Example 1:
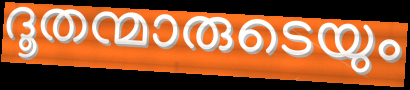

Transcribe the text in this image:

ദൂതന്മാരുടെയും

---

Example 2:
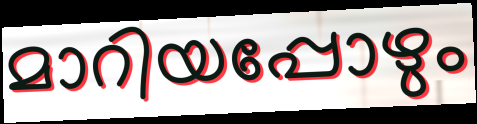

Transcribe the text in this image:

മാറിയപ്പോഴും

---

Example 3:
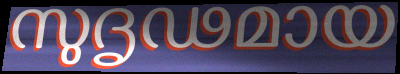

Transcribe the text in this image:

സുദൃഢമായ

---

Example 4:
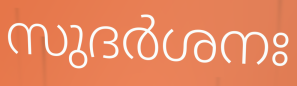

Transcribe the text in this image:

സുദർശനഃ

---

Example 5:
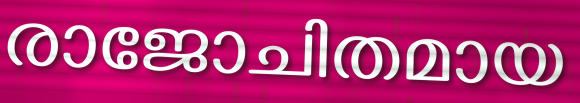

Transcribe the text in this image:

രാജോചിതമായ